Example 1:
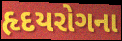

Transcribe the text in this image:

હૃદયરોગના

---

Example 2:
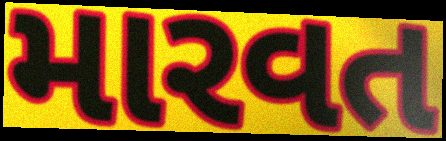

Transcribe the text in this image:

મારવત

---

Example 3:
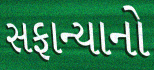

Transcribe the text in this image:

સફાન્યાનો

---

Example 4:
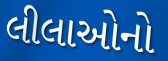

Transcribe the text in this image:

લીલાઓનો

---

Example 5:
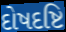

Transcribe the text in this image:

દોષદષ્ટિ